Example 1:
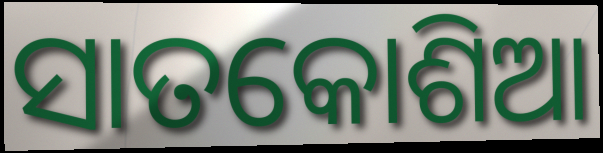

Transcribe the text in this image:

ସାତକୋଶିଆ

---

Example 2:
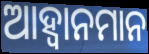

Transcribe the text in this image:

ଆହ୍ୱାନମାନ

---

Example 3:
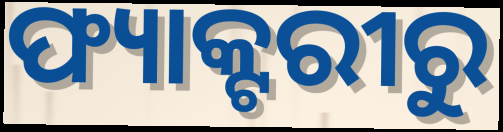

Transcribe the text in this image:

ଫ୍ୟାକ୍ଟରୀରୁ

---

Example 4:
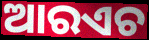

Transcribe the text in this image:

ଆରଏଚ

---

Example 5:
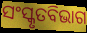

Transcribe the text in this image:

ସଂସ୍କୃତବିଭାଗ